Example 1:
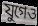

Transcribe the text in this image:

যুগেও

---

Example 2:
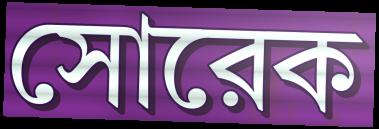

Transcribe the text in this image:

সোরেক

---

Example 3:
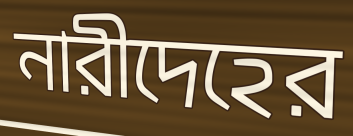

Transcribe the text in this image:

নারীদেহের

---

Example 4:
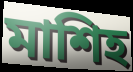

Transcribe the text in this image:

মাশিহ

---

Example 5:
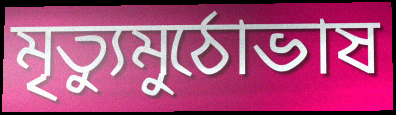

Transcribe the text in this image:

মৃত্যুমুঠোভাষ